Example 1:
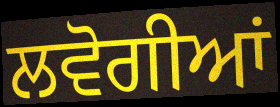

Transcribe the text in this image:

ਲਵੋਗੀਆਂ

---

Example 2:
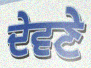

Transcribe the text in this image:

ਦੇਵਣੇ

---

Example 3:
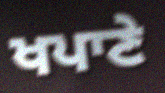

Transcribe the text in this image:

ਖਪਾਣੇ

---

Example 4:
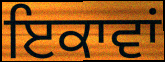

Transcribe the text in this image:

ਇਕਾਵਾਂ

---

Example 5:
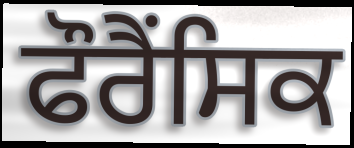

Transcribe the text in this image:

ਫੌਰੈਂਸਿਕ